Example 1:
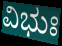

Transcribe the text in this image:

ವಿಭುಃ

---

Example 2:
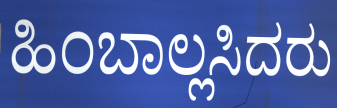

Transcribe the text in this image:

ಹಿಂಬಾಲ್ಲಸಿದರು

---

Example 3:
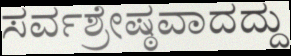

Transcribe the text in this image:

ಸರ್ವಶ್ರೇಷ್ಠವಾದದ್ದು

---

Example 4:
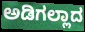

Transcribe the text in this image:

ಅಡಿಗಲ್ಲಾದ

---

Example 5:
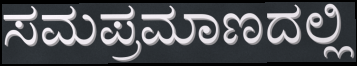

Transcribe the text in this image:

ಸಮಪ್ರಮಾಣದಲ್ಲಿ